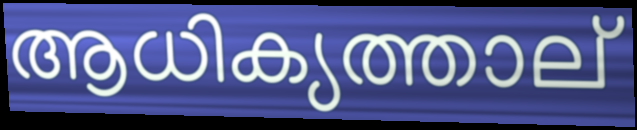
ആധിക്യത്താല്